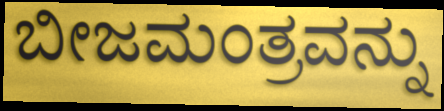
ಬೀಜಮಂತ್ರವನ್ನು